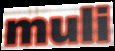
muli